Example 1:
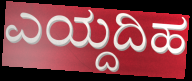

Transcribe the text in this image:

ಎಯ್ದದಿಹ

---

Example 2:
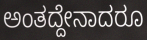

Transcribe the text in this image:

ಅಂತದ್ದೇನಾದರೂ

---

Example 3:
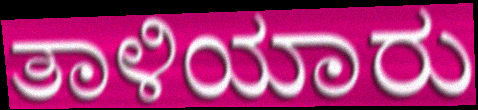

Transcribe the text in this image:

ತಾಳಿಯಾರು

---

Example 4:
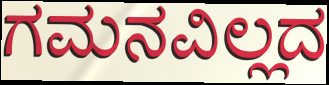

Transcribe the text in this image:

ಗಮನವಿಲ್ಲದ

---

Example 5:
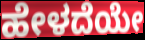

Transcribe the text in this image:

ಹೇಳದೆಯೇ